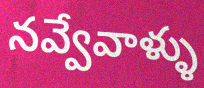
నవ్వేవాళ్ళు